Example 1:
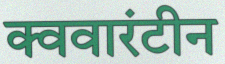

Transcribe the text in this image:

क्ववारंटीन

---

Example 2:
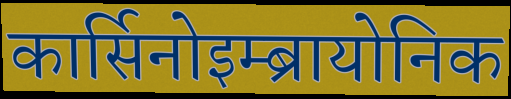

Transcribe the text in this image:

कार्सिनोइम्ब्रायोनिक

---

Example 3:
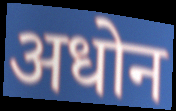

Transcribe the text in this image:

अधोन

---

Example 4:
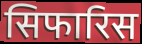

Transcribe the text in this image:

सिफारिस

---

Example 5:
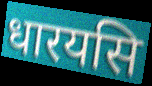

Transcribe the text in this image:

धारयसि